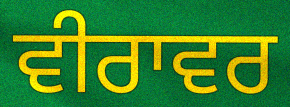
ਵੀਰਾਵਰ